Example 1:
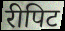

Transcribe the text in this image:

रीपिट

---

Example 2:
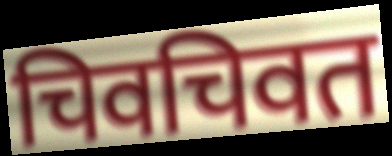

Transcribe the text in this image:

चिवचिवत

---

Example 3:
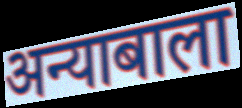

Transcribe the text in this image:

अन्याबाला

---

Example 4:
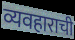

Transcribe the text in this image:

व्यवहाराची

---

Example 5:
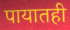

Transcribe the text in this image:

पायातही